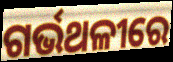
ଗର୍ଭଥଳୀରେ